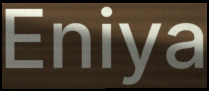
Eniya